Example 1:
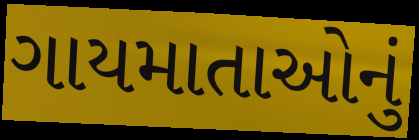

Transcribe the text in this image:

ગાયમાતાઓનું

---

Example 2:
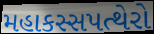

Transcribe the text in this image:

મહાકસ્સપત્થેરો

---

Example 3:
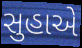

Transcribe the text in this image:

સુહાએ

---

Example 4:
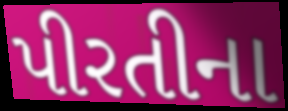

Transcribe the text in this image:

પીરતીના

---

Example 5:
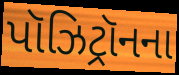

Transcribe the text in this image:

પૉઝિટ્રૉનના